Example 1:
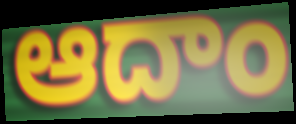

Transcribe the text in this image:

ఆదాం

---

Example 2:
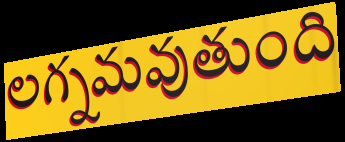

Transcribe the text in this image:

లగ్నమవుతుంది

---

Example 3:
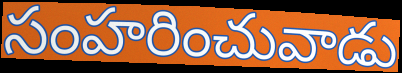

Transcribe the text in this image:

సంహరించువాడు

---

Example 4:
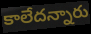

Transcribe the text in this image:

కాలేదన్నారు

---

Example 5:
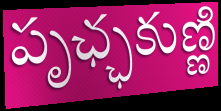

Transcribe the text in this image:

పృఛ్ఛకుణ్ణి